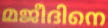
മജീദിനെ